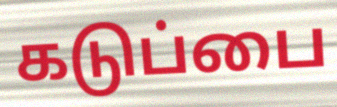
கடுப்பை